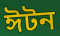
ঈটন